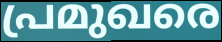
പ്രമുഖരെ